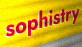
sophistry